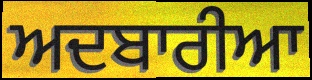
ਅਦਬਾਰੀਆ